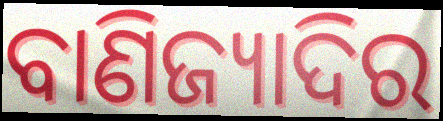
ବାଣିଜ୍ୟାଦିର